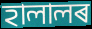
হালালৰ